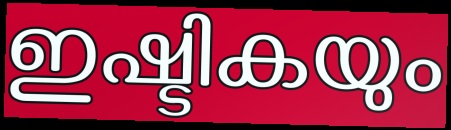
ഇഷ്ടികയും